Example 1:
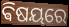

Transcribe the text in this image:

ଵିଷୟରେ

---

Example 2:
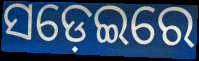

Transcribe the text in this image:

ସଡ଼େଇରେ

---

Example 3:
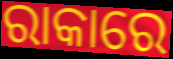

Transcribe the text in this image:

ରାକାରେ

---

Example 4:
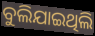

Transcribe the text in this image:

ବୁଲିଯାଇଥିଲି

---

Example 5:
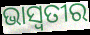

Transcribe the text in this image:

ଭାସ୍ଵତୀର